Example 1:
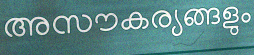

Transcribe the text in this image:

അസൗകര്യങ്ങളും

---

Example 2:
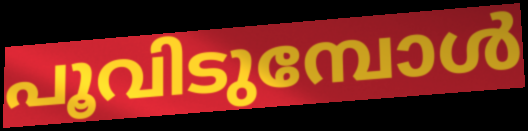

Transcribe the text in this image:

പൂവിടുമ്പോൾ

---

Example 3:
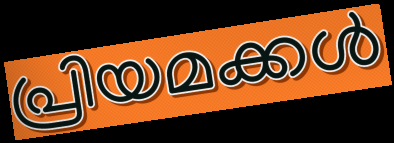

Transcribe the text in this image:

പ്രിയമക്കൾ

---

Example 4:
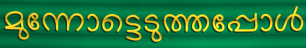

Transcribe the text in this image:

മുന്നോട്ടെടുത്തപ്പോൾ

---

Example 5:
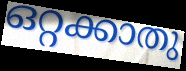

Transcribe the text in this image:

ഒറ്റക്കാതു